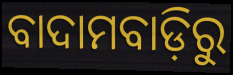
ବାଦାମବାଡ଼ିରୁ